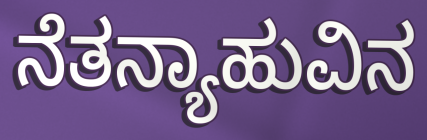
ನೆತನ್ಯಾಹುವಿನ